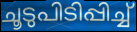
ചൂടുപിടിപ്പിച്ച്